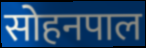
सोहनपाल